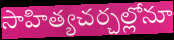
సాహిత్యచర్చల్లోనూ